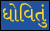
ધોવિતું